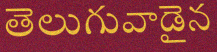
తెలుగువాడైన